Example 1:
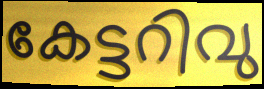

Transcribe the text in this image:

കേട്ടറിവു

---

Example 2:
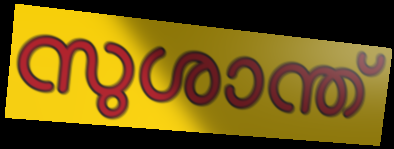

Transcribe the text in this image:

സുശാന്ത്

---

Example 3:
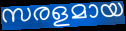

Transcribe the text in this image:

സരളമായ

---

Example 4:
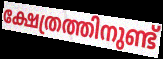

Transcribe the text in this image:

ക്ഷേത്രത്തിനുണ്ട്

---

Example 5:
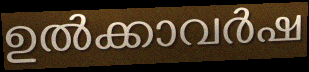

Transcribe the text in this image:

ഉൽക്കാവർഷ